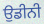
ਉਡੀਨੀ